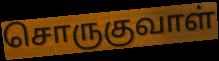
சொருகுவாள்